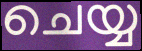
ചെയ്യ